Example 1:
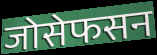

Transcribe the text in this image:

जोसेफसन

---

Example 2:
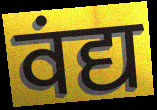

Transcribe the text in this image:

वंद्य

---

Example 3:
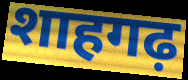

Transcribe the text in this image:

शाहगढ़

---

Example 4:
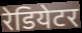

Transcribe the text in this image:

रेडियेटर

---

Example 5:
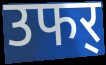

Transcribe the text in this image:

उफर्